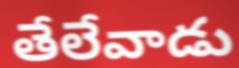
తేలేవాడు